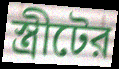
স্ত্রীটের